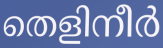
തെളിനീർ